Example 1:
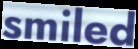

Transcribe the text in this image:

smiled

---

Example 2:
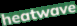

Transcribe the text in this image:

heatwave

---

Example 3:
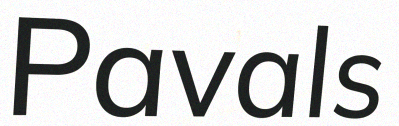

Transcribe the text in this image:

Pavals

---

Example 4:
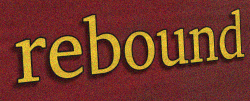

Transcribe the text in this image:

rebound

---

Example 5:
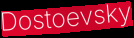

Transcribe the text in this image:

Dostoevsky